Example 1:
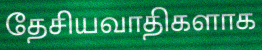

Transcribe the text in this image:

தேசியவாதிகளாக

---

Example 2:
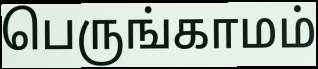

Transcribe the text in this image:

பெருங்காமம்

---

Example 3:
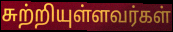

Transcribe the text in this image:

சுற்றியுள்ளவர்கள்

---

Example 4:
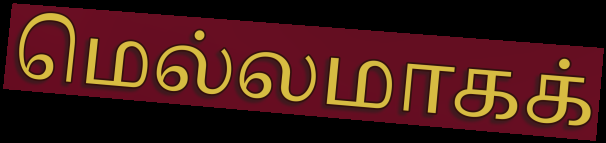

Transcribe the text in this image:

மெல்லமாகக்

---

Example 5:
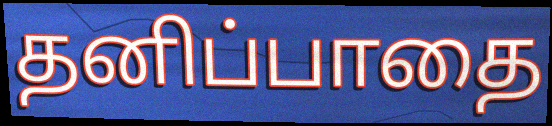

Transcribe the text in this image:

தனிப்பாதை